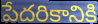
పేదరికానికి